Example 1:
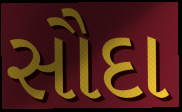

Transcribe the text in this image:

સૌદા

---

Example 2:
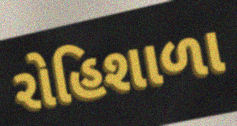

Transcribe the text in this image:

રોહિશાળા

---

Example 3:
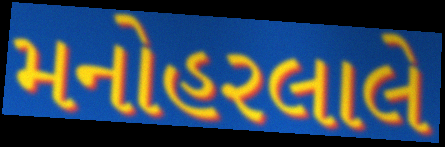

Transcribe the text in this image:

મનોહરલાલે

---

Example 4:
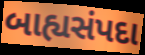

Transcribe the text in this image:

બાહ્યસંપદા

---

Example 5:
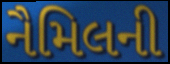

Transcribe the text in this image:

નૈમિલની